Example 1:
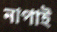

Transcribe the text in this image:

নাপাই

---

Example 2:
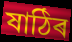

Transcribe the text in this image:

ষাঠিৰ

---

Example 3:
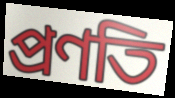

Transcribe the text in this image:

প্ৰণতি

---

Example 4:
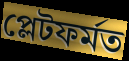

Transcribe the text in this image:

প্লেটফৰ্মত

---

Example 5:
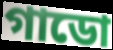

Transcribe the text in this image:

গাডো